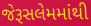
જેરૂસલેમમાંથી